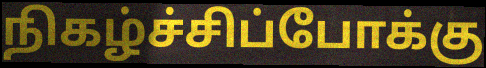
நிகழ்ச்சிப்போக்கு